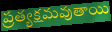
ప్రత్యక్షమవుతాయి